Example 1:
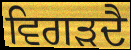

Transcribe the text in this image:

ਵਿਗੜਦੈ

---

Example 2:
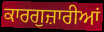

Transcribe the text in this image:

ਕਾਰਗੁਜ਼ਾਰੀਆਂ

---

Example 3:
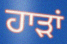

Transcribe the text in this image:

ਹਾੜਾਂ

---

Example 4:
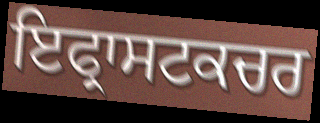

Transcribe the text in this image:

ਇਫ੍ਰਾਸਟਕਚਰ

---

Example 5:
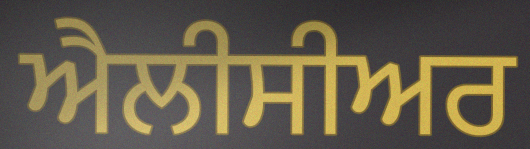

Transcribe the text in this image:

ਐਲੀਸੀਅਰ